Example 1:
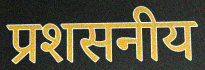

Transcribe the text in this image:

प्रशसनीय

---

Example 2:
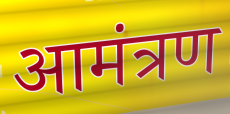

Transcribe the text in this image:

आमंत्रण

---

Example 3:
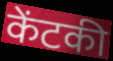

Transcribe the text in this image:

केंटकी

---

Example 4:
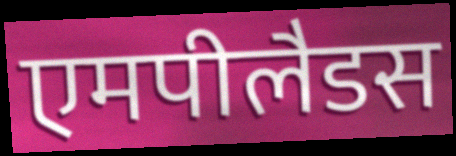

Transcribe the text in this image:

एमपीलैडस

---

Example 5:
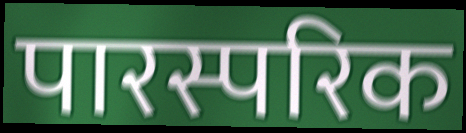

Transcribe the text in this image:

पारस्परिक